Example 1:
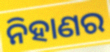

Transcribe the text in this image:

ନିହାଣର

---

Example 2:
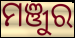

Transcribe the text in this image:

ମଞ୍ଜୁର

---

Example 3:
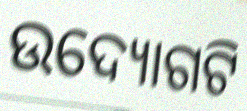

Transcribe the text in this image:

ଉଦ୍ୟୋଗଟି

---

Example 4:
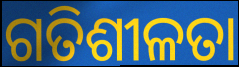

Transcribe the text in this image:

ଗତିଶୀଳତା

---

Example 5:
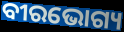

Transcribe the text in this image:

ବୀରଭୋଗ୍ୟ